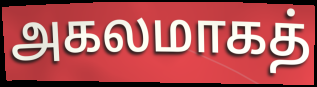
அகலமாகத்